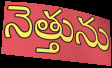
నెత్తును